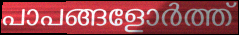
പാപങ്ങളോർത്ത്